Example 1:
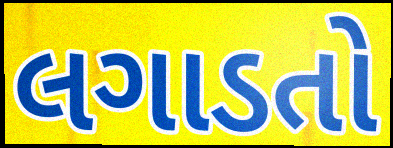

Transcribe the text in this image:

લગાડતો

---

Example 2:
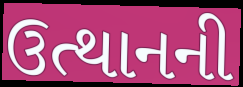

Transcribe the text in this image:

ઉત્થાનની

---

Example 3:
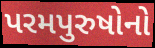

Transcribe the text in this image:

પરમપુરુષોનો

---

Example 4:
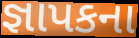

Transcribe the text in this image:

જ્ઞાપકના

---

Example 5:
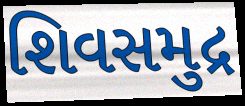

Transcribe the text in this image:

શિવસમુદ્ર